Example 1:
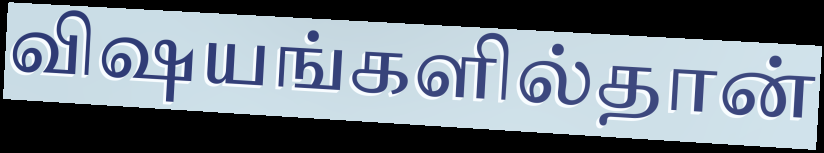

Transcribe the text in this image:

விஷயங்களில்தான்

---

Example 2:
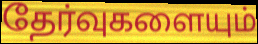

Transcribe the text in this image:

தேர்வுகளையும்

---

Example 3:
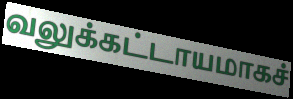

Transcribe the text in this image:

வலுக்கட்டாயமாகச்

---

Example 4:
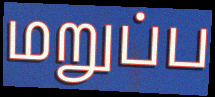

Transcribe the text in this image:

மறுப்ப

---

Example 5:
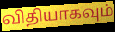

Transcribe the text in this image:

விதியாகவும்